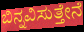
ಬಿನ್ನವಿಸುತ್ತೇನೆ